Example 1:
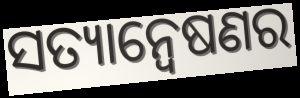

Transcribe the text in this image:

ସତ୍ୟାନ୍ୱେଷଣର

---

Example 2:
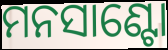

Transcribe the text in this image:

ମନସାଣ୍ଟୋ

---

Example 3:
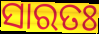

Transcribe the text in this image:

ସାରତଃ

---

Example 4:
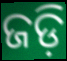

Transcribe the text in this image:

ଜଡ଼ି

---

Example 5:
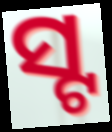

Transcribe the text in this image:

ସ୍ଟ